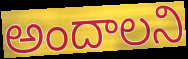
అందాలని